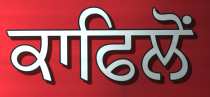
ਕਾਫਿਲੋਂ